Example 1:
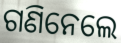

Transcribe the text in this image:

ଗଣିନେଲେ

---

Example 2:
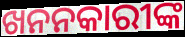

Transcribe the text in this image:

ଖନନକାରୀଙ୍କ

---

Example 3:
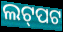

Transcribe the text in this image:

ଲଟ୍‌ପଟ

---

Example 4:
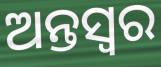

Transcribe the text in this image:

ଅନ୍ତସ୍ୱର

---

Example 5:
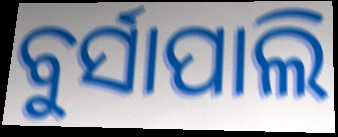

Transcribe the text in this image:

ବୁର୍ସାପାଲି